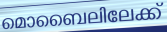
മൊബൈലിലേക്ക്